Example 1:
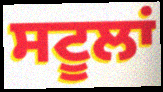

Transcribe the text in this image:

ਸਟੂਲਾਂ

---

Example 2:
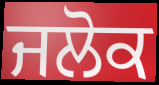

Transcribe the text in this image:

ਜਲੋਕ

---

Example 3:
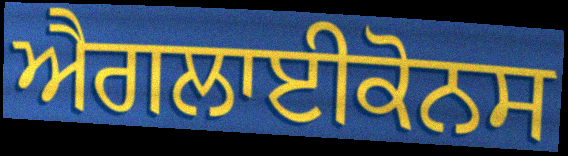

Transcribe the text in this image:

ਐਗਲਾਈਕੋਨਸ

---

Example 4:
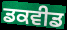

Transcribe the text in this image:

ਡਕਵੀਡ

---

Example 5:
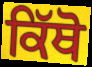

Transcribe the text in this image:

ਕਿੱਥੋ